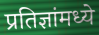
प्रतिज्ञांमध्ये